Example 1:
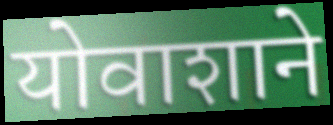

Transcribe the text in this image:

योवाशाने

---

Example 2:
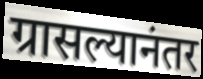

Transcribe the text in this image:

ग्रासल्यानंतर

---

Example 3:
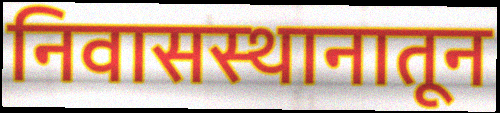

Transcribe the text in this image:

निवासस्थानातून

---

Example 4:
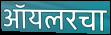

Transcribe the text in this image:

ऑयलरचा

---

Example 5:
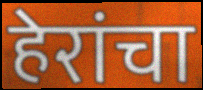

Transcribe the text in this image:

हेरांचा